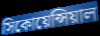
সিকোয়েন্সিয়াল